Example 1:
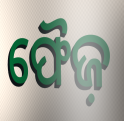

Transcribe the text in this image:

ଫୈଜ଼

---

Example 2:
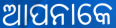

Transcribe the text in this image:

ଆପନାକେ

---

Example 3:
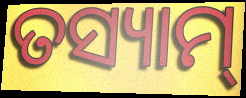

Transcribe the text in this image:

ତସ୍ୟାମ୍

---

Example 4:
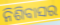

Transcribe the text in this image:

ନିଶିବାସର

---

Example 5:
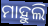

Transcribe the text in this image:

ମାହୁଲି